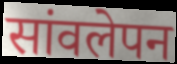
सांवलेपन